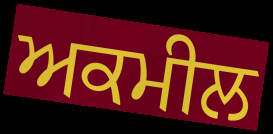
ਅਕਮੀਲ